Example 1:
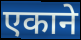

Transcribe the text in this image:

एकाने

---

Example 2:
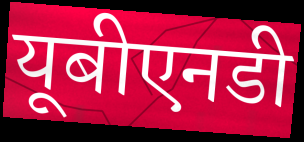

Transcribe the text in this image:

यूबीएनडी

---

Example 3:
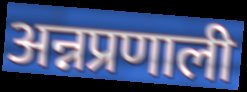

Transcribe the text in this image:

अन्नप्रणाली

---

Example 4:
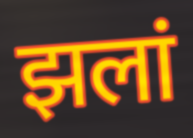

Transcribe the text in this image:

झलां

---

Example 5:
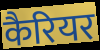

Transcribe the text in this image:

कैरियर